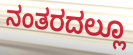
ನಂತರದಲ್ಲೂ